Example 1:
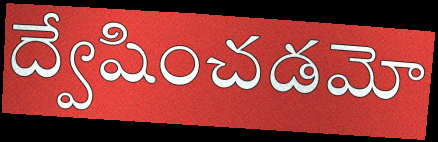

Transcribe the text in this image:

ద్వేషించడమో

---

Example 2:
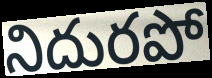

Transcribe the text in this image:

నిదురపో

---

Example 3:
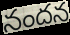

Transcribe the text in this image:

నందన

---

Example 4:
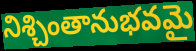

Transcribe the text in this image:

నిశ్చింతానుభవమై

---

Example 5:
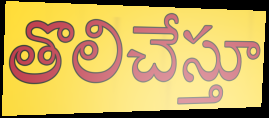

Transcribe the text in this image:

తొలిచేస్తూ